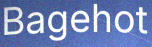
Bagehot